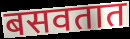
बसवतात